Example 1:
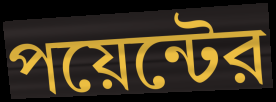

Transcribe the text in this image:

পয়েন্টের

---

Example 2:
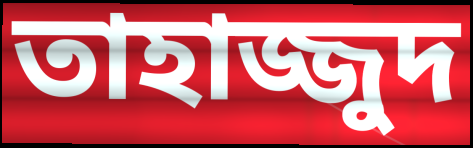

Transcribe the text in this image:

তাহাজ্জুদ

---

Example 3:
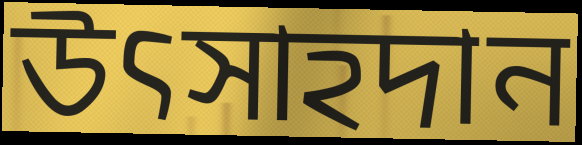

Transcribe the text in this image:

উৎসাহদান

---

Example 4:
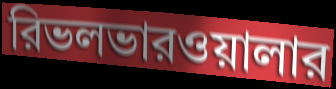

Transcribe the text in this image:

রিভলভারওয়ালার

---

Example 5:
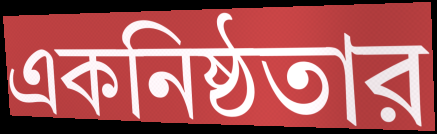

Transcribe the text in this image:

একনিষ্ঠতার